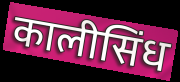
कालीसिंध